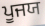
ਪੂਜਯ